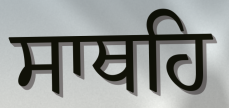
ਸਾਥਹਿ